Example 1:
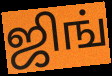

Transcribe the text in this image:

ஜிங்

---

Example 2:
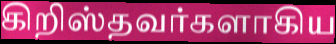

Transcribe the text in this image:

கிறிஸ்தவர்களாகிய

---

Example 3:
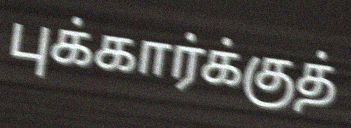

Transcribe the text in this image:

புக்கார்க்குத்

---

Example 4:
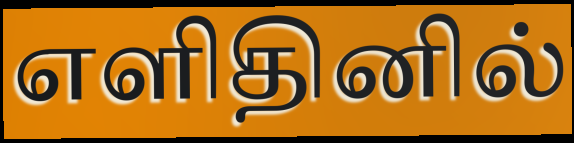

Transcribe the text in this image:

எளிதினில்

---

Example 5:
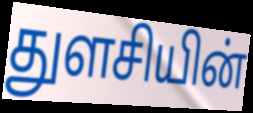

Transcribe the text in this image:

துளசியின்